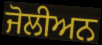
ਜੋਲੀਅਨ